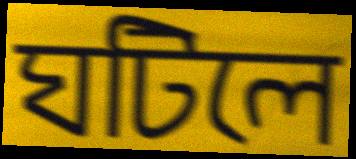
ঘটিলে